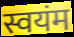
स्वयंम